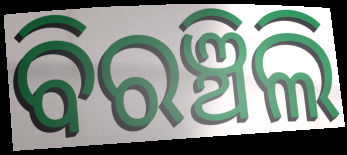
ବିରଞ୍ଚିଲି